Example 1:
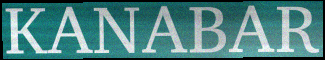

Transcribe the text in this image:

KANABAR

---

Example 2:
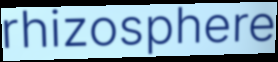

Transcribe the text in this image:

rhizosphere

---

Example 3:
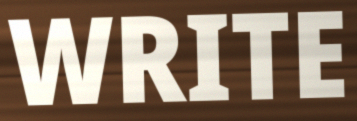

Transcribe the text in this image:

WRITE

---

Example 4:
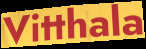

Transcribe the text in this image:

Vitthala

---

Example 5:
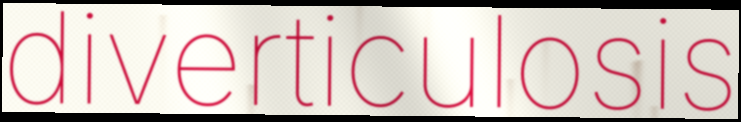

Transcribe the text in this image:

diverticulosis